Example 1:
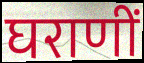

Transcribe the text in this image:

घराणीं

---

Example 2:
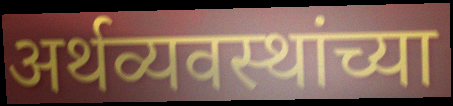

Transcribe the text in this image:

अर्थव्यवस्थांच्या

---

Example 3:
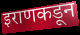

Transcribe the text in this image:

इराणकडून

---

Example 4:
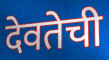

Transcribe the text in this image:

देवतेची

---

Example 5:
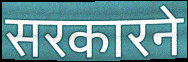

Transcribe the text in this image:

सरकारने